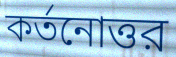
কর্তনোত্তর